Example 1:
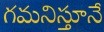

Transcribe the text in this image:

గమనిస్తూనే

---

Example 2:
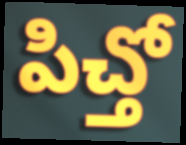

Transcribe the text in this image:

పిచ్తో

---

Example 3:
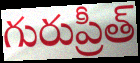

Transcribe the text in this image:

గురుప్రీత్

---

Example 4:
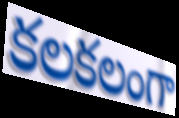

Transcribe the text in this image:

కలకలంగా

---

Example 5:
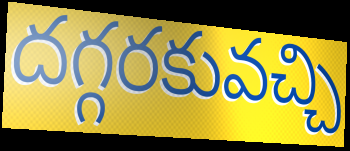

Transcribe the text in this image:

దగ్గరకువచ్చి